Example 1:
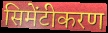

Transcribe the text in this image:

सिमेंटीकरण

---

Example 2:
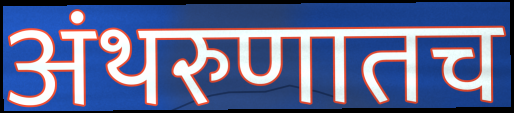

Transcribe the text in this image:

अंथरुणातच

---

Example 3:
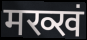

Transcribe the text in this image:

मख्खं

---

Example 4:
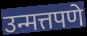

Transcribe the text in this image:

उन्मत्तपणे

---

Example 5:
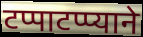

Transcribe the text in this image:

टप्पाटप्प्याने